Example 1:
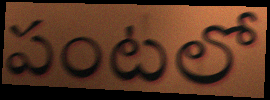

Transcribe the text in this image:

పంటలో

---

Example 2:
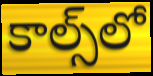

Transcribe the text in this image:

కాల్స్‌లో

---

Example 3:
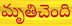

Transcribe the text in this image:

మృతిచెంది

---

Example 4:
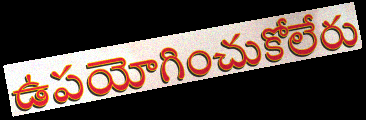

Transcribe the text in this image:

ఉపయోగించుకోలేరు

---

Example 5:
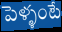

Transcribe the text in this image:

పెళ్ళంటే